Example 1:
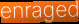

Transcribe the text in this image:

enraged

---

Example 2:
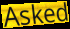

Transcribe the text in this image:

Asked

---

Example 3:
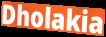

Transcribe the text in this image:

Dholakia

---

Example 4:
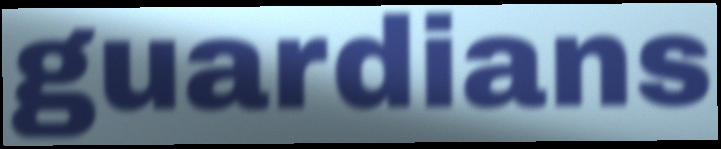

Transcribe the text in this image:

guardians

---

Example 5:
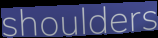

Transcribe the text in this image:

shoulders